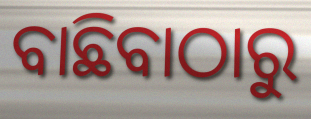
ବାଛିବାଠାରୁ